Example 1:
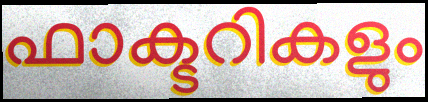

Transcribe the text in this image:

ഫാക്ടറികളും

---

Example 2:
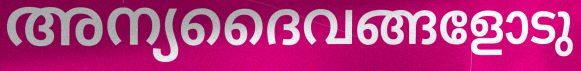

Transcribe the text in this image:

അന്യദൈവങ്ങളോടു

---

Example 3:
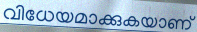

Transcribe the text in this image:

വിധേയമാക്കുകയാണ്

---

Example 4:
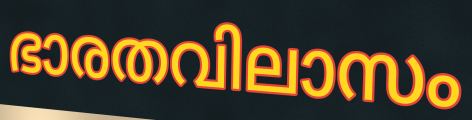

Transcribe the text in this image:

ഭാരതവിലാസം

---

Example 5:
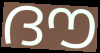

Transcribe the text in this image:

ദൗ